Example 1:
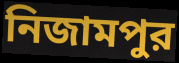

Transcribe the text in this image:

নিজামপুর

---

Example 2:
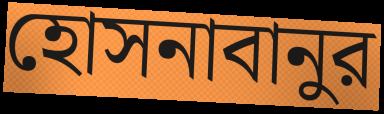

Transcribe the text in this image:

হোসনাবানুর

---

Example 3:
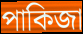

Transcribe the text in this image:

পাকিজা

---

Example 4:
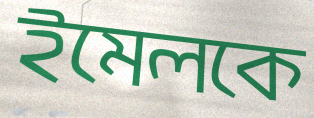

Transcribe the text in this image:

ইমেলকে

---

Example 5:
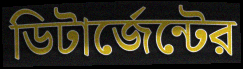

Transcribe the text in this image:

ডিটার্জেন্টের